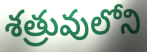
శత్రువులోని